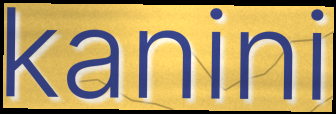
kanini